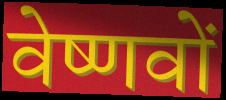
वेष्णवों